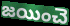
జయించె